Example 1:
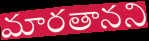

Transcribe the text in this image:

మారతానని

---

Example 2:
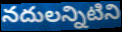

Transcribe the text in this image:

నదులన్నిటిని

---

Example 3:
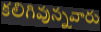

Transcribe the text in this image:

కలిగివున్నవారు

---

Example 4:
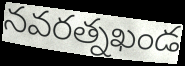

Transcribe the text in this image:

నవరత్నఖండ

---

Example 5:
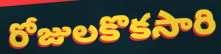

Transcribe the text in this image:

రోజులకొకసారి